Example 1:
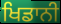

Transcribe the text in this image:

ਖਿਡਾਨੀ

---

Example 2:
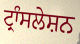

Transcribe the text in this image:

ਟ੍ਰਾੰਸਲੇਸ਼ਨ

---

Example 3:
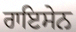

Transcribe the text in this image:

ਰਾਇਸੇਨ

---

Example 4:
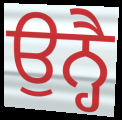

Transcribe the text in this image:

ਉਨ੍ਹੈ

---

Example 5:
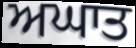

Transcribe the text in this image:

ਅਘਾਤ